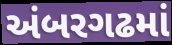
અંબરગઢમાં